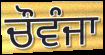
ਚੌਵੰਜਾ